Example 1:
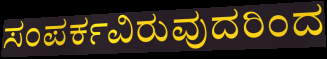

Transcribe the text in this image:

ಸಂಪರ್ಕವಿರುವುದರಿಂದ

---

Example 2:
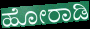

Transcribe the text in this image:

ಹೋರಾಡಿ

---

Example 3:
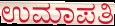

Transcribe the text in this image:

ಉಮಾಪತಿ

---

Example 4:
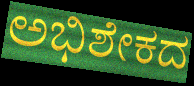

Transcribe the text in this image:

ಅಭಿಶೇಕದ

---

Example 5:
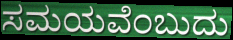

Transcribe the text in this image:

ಸಮಯವೆಂಬುದು